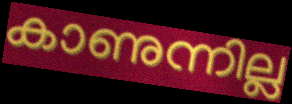
കാണുന്നില്ല